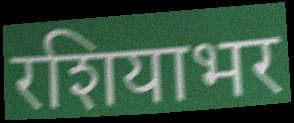
रशियाभर